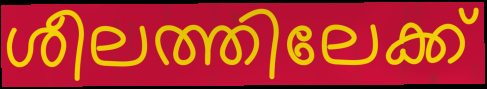
ശീലത്തിലേക്ക്